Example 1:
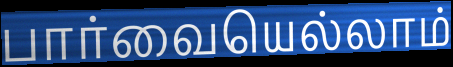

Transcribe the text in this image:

பார்வையெல்லாம்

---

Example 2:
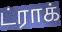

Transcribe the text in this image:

ட்ராக்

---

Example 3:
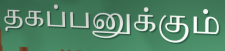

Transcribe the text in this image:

தகப்பனுக்கும்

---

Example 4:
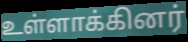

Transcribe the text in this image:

உள்ளாக்கினர்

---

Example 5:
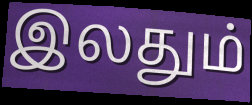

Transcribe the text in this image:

இலதும்